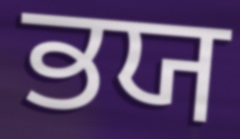
ਭਯ